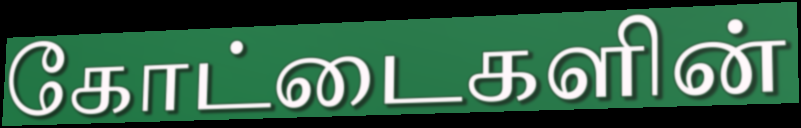
கோட்டைகளின்